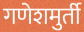
गणेशमुर्ती